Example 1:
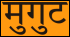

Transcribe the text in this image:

मुगुट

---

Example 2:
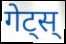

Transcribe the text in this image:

गेट्स्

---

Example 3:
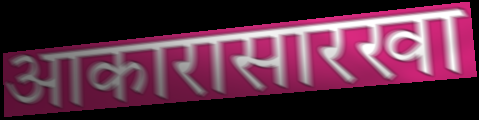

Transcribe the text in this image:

आकारासारखा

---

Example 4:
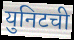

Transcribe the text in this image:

युनिटची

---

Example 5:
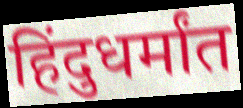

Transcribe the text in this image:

हिंदुधर्मांत